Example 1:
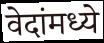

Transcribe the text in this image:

वेदांमध्ये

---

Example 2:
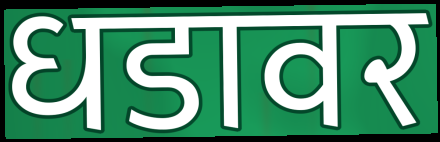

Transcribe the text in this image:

धडावर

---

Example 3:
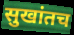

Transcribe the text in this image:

सुखांतच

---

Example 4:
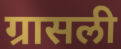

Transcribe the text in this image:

ग्रासली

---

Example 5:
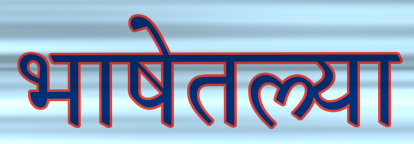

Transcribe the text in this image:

भाषेतल्या